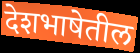
देशभाषेतील